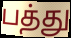
பத்து